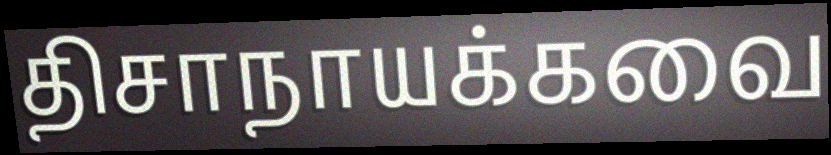
திசாநாயக்கவை